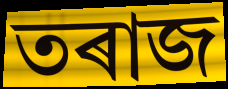
তৰাজ